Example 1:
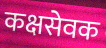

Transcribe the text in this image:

कक्षसेवक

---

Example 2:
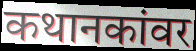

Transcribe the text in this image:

कथानकांवर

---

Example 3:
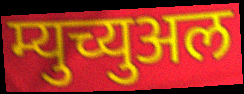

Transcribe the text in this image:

म्युच्युअल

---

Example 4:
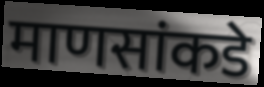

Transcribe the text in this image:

माणसांकडे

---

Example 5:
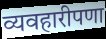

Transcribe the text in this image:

व्यवहारीपणा